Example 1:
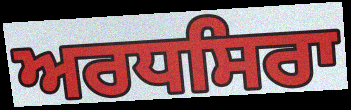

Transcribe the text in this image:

ਅਰਧਸਿਰਾ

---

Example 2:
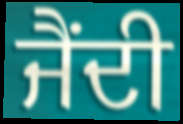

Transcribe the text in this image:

ਜੈਂਦੀ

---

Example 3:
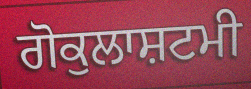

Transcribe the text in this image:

ਗੋਕੁਲਾਸ਼ਟਮੀ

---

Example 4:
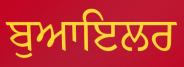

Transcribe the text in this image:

ਬੁਆਇਲਰ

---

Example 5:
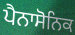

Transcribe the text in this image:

ਪੈਨਾਸੋਨਿਕ